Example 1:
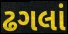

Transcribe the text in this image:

ઢગલાં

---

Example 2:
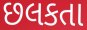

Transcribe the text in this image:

છલકતા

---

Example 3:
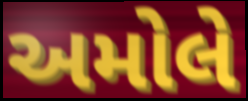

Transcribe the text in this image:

અમોલે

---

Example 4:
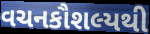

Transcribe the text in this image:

વચનકૌશલ્યથી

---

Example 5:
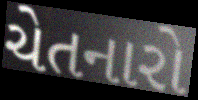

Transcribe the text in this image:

ચેતનારો